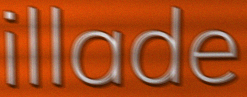
illade